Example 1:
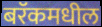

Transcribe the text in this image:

बरॅकमधील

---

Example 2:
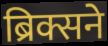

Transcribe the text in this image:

ब्रिक्सने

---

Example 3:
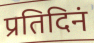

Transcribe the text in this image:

प्रतिदिनं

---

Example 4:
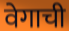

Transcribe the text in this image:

वेगाची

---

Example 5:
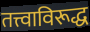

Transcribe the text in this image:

तत्त्वाविरूद्ध